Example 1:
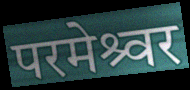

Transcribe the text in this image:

परमेश्र्वर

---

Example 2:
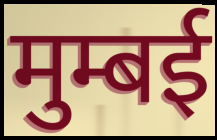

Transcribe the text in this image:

मुम्बई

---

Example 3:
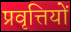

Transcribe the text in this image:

प्रवृत्तियों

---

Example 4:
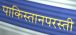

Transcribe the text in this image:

पाकिस्तानपरस्ती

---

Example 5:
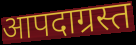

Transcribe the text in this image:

आपदाग्रस्त